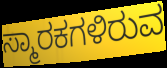
ಸ್ಮಾರಕಗಳಿರುವ